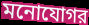
মনোযোগর